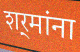
शर्मांना